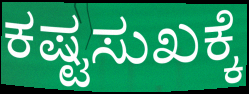
ಕಷ್ಟಸುಖಕ್ಕೆ